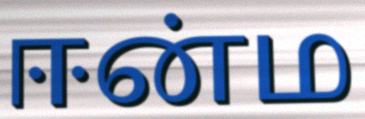
ஈன்ம